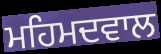
ਮਹਿਮਦਵਾਲ